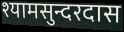
श्यामसुन्दरदास